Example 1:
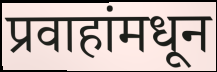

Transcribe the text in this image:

प्रवाहांमधून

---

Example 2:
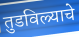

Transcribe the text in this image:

तुडविल्याचे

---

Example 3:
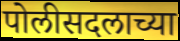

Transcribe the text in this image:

पोलीसदलाच्या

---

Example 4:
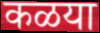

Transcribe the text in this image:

कळया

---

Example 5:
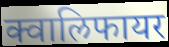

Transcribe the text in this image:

क्वालिफायर